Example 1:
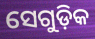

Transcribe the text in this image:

ସେଗୁଡ଼ିକ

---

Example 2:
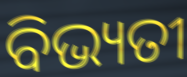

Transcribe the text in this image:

ବିଭ୍ୟତୀ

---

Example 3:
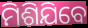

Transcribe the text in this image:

ମିଶିଯିବେ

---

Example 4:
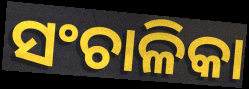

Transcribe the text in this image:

ସଂଚାଳିକା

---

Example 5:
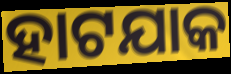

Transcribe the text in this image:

ହାଟଯାକ